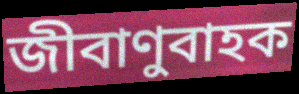
জীবাণুবাহক